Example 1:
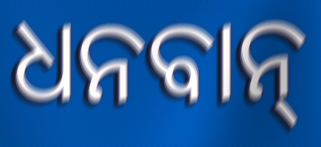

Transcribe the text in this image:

ଧନବାନ୍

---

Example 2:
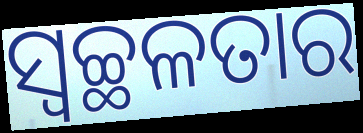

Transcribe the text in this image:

ସ୍ଵଚ୍ଛଳତାର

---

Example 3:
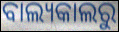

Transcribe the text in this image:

ବାଲ୍ୟକାଲରୁ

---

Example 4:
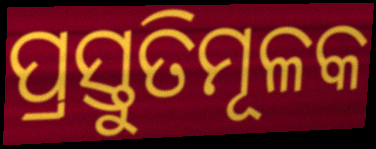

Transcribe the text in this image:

ପ୍ରସ୍ତୁତିମୂଳକ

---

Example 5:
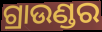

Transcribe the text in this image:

ଗ୍ରାଉଣ୍ଡର